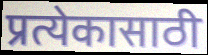
प्रत्येकासाठी